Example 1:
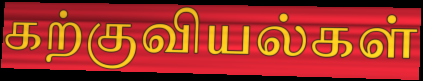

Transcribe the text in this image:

கற்குவியல்கள்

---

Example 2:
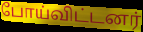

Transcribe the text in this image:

போய்விட்டனர்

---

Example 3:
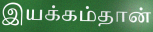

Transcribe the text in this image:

இயக்கம்தான்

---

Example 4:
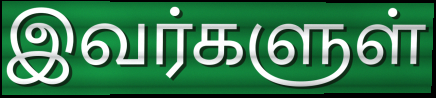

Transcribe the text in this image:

இவர்களுள்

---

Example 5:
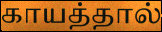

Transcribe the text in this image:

காயத்தால்